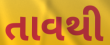
તાવથી